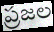
ప్రజల